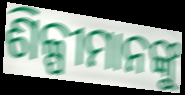
ଶିଳ୍ପୀମାନଙ୍କୁ